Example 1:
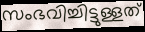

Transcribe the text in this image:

സംഭവിച്ചിട്ടുള്ളത്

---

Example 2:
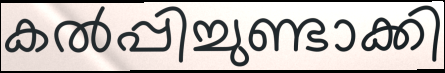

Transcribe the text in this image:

കൽപ്പിച്ചുണ്ടാക്കി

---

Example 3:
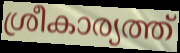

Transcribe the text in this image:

ശ്രീകാര്യത്ത്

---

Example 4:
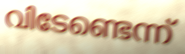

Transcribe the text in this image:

വിടേണ്ടെന്ന്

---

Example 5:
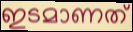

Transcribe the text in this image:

ഇടമാണത്